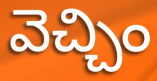
వెచ్చిం